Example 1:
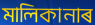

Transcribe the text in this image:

মালিকানাৰ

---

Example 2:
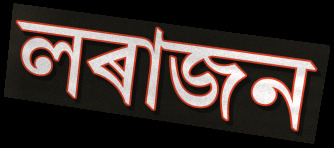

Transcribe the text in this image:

লৰাজন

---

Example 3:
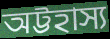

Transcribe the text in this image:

অট্টহাস্য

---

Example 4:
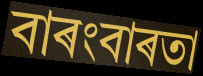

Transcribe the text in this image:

বাৰংবাৰতা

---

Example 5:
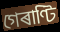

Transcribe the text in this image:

গেৰাণ্টি